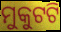
ମୁକୁଟଟି